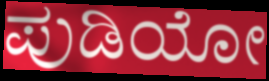
ಪುಡಿಯೋ